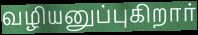
வழியனுப்புகிறார்